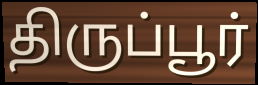
திருப்பூர்